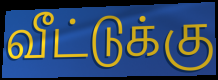
வீட்டுக்கு